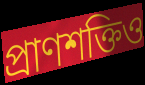
প্রাণশক্তিও